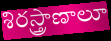
శిరస్త్రాణాలూ